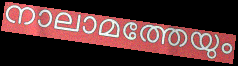
നാലാമത്തേയും